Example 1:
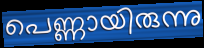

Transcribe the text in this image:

പെണ്ണായിരുന്നു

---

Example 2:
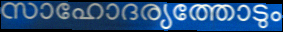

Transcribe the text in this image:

സാഹോദര്യത്തോടും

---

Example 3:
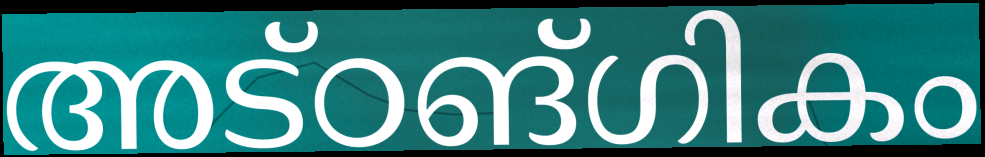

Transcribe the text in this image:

അട്ഠങ്ഗികം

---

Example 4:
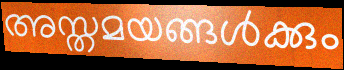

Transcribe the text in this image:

അസ്തമയങ്ങൾക്കും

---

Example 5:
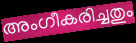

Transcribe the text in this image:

അംഗീകരിച്ചതും